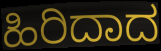
ಹಿರಿದಾದ